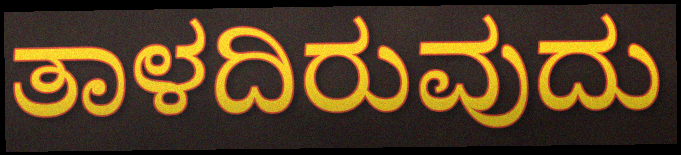
ತಾಳದಿರುವುದು